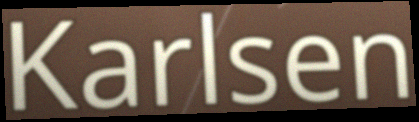
Karlsen